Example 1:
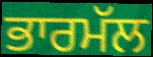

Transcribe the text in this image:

ਭਾਰਮੱਲ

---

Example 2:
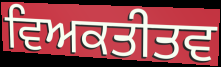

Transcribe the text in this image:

ਵਿਅਕਤੀਤਵ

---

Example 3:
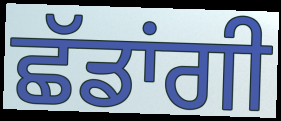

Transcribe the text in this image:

ਛੱਡਾਂਗੀ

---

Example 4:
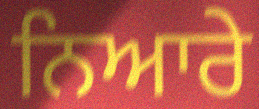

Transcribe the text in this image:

ਨਿਆਰੇ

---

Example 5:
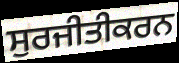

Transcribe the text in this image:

ਸੁਰਜੀਤੀਕਰਨ